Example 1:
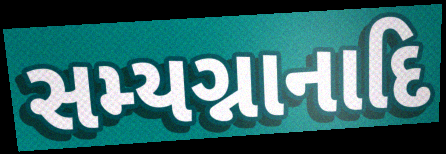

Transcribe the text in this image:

સમ્યગ્નાનાદિ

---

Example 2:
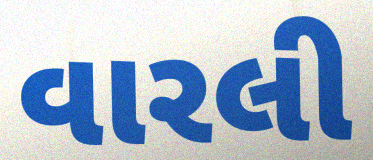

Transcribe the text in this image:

વારલી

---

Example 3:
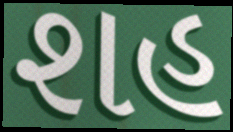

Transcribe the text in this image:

શહ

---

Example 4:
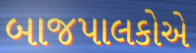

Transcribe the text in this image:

બાજપાલકોએ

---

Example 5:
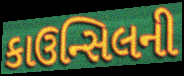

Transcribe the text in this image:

કાઉન્સિલની